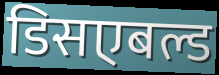
डिसएबल्ड